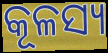
କୂଳସ୍ଯ